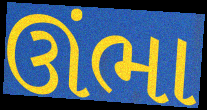
ઊંભા